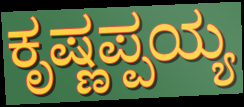
ಕೃಷ್ಣಪ್ಪಯ್ಯ